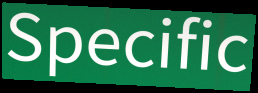
Specific